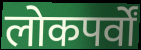
लोकपर्वों